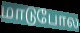
மாடுபோல